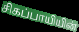
சிகப்பாயியின்